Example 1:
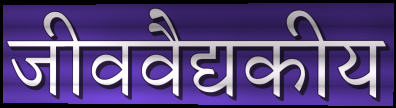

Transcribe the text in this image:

जीववैद्यकीय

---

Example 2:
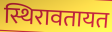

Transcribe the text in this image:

स्थिरावतायत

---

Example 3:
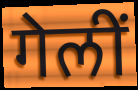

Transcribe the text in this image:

गेलीं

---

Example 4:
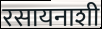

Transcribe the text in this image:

रसायनाशी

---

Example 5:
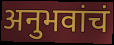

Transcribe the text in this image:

अनुभवांचं